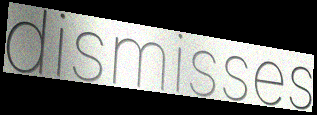
dismisses